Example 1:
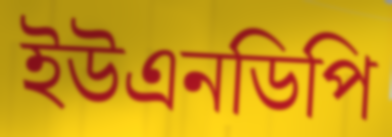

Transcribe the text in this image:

ইউএনডিপি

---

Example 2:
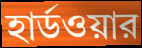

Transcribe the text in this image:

হার্ডওয়ার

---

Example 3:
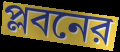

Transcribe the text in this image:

প্লবনের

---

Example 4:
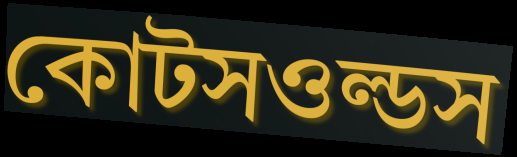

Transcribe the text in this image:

কোটসওল্ডস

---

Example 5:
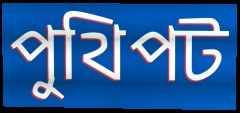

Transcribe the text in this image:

পুথিপট